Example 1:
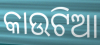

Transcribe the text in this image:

କାଉଟିଆ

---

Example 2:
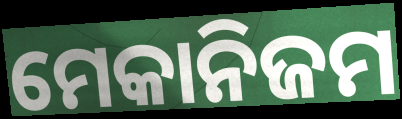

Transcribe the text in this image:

ମେକାନିଜମ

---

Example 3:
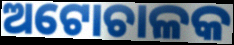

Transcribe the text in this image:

ଅଟୋଚାଳକ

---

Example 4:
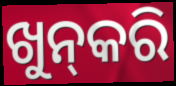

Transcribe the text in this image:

ଖୁନ୍‍କରି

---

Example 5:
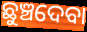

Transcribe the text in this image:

ଛୁଞ୍ଚଦେବା